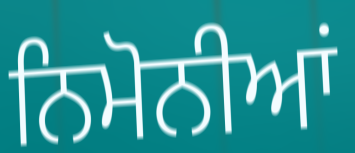
ਨਿਮੋਨੀਆਂ